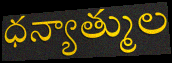
ధన్యాత్ముల